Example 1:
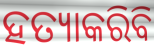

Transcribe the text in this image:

ହତ୍ୟାକରିବି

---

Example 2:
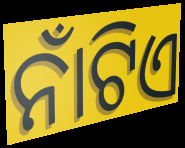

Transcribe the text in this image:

ନାଁଟିଏ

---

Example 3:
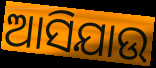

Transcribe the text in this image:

ଆସିଯାଉ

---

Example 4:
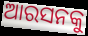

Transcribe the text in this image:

ଆରସନକୁ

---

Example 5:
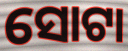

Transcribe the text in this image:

ସୋଟା